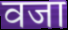
वजा